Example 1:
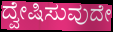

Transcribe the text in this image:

ದ್ವೇಷಿಸುವುದೇ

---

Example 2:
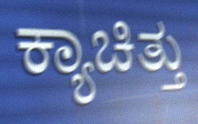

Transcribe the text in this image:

ಕ್ಯಾಚಿತ್ತು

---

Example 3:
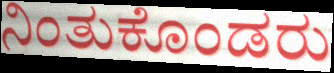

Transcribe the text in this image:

ನಿಂತುಕೊಂಡರು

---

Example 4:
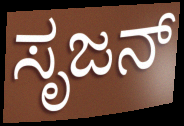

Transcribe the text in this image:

ಸೃಜನ್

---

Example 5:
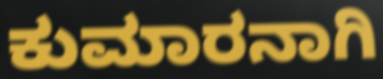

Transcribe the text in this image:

ಕುಮಾರನಾಗಿ